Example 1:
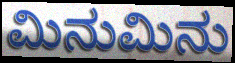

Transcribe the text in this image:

ಮಿನುಮಿನು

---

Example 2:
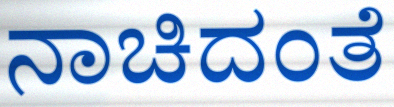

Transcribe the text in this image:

ನಾಚಿದಂತೆ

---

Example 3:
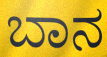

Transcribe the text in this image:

ಬಾನ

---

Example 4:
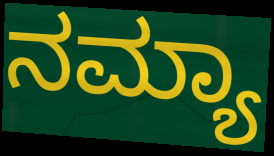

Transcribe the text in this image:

ನಮ್ಯಾ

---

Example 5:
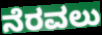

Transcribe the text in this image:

ನೆರವಲು